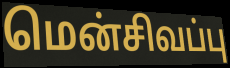
மென்சிவப்பு